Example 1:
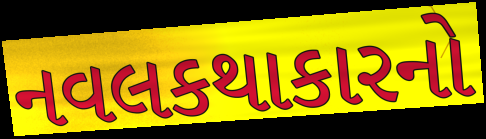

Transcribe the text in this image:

નવલકથાકારનો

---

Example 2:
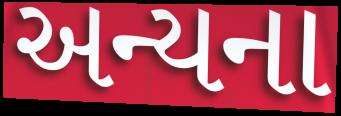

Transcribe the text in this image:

અન્યના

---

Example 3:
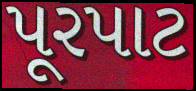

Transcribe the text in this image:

પૂરપાટ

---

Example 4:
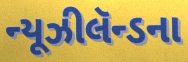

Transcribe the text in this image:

ન્યૂઝીલૅન્ડના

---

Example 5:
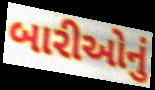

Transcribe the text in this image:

બારીઓનું